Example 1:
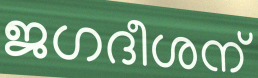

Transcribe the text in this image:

ജഗദീശന്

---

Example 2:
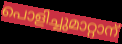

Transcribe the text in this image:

പൊളിച്ചുമാറ്റാന്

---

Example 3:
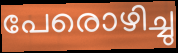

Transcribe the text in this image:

പേരൊഴിച്ചു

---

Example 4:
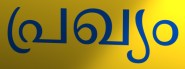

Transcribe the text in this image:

പ്രഖ്യം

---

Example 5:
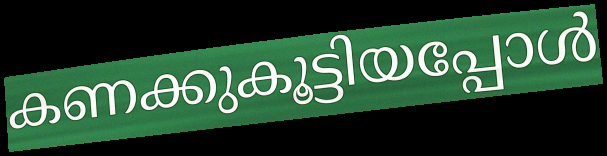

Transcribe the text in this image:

കണക്കുകൂട്ടിയപ്പോൾ